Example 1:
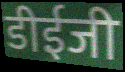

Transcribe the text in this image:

डीईजी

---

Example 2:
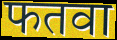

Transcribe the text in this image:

फतवा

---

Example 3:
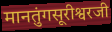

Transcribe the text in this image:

मानतुंगसूरीश्वरजी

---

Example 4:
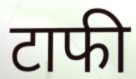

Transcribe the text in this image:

टाफी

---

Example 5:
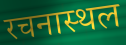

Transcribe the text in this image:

रचनास्थल